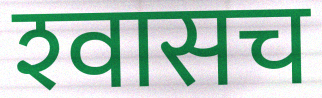
श्‍वासच